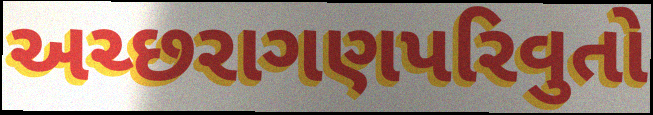
અચ્છરાગણપરિવુતો